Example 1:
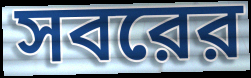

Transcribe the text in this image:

সবরের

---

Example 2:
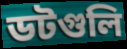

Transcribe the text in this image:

ডটগুলি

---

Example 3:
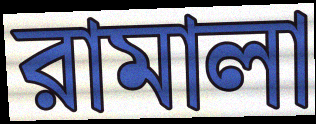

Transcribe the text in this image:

রামালা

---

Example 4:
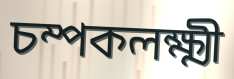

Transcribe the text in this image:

চম্পকলক্ষ্মী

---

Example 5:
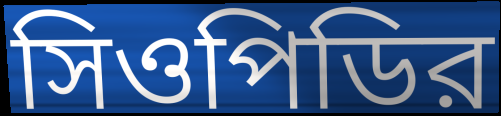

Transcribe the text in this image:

সিওপিডির